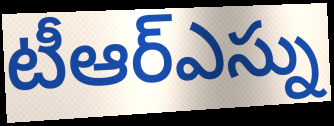
టీఆర్ఎస్ను